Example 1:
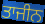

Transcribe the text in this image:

ਤਾਜੀਨ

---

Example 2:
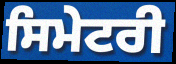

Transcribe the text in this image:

ਸਿਮੇਟਰੀ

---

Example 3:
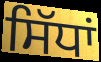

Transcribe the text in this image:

ਸਿੱਧਾਂ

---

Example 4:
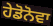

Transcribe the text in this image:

ਹੇਡੋਨੋਵਾ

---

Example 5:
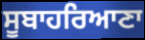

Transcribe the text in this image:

ਸੂਬਾਹਰਿਆਣਾ